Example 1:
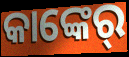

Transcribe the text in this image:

କାଙ୍କେର୍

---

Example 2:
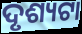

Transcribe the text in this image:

ଦୃଶ୍ୟଟା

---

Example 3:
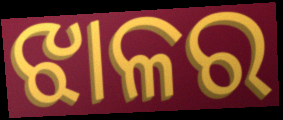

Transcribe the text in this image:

ଝାଳର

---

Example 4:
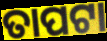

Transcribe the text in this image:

ତାପଟା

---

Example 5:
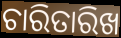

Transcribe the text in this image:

ଚାରିତାରିଖ